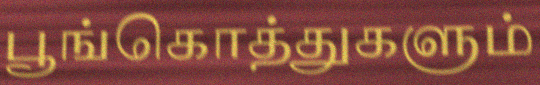
பூங்கொத்துகளும்